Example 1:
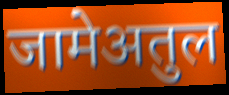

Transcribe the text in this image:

जामेअतुल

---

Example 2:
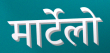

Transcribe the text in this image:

मार्टेलो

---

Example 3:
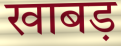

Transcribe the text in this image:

खाबड़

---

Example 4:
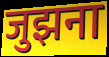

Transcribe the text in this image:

जुझना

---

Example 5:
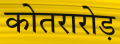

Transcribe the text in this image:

कोतरारोड़